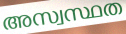
അസ്വസ്ഥത